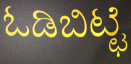
ಓಡಿಬಿಟ್ಟೆ